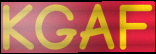
KGAF